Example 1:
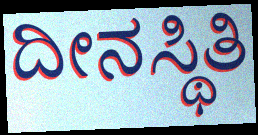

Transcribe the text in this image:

ದೀನಸ್ಥಿತಿ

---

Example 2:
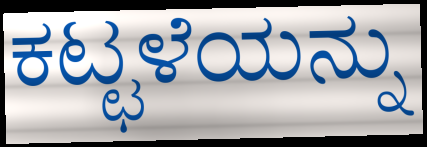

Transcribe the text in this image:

ಕಟ್ಟಳೆಯನ್ನು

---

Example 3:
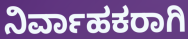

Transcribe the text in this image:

ನಿರ್ವಾಹಕರಾಗಿ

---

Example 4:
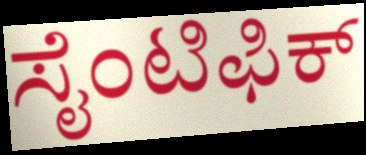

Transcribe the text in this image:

ಸೈಂಟಿಫಿಕ್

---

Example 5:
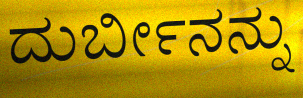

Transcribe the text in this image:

ದುರ್ಬೀನನ್ನು